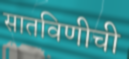
सातविणीची